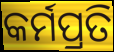
କର୍ମପ୍ରତି